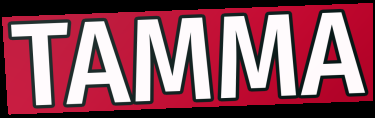
TAMMA